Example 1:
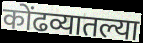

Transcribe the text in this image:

कोंढव्यातल्या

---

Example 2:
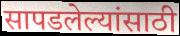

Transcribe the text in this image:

सापडलेल्यांसाठी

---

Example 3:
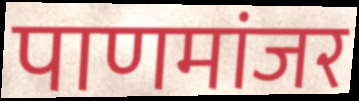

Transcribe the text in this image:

पाणमांजर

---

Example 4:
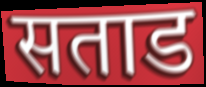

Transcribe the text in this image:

सताड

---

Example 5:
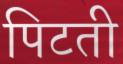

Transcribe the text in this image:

पिटती